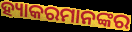
ହ୍ୟାକରମାନଙ୍କର